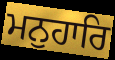
ਮਨੁਹਾਰਿ